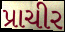
પ્રાચીર